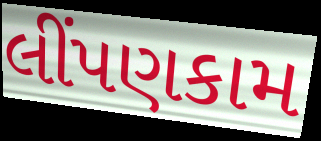
લીંપણકામ